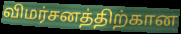
விமர்சனத்திற்கான